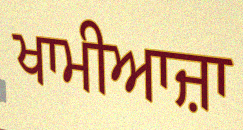
ਖਾਮੀਆਜ਼ਾ